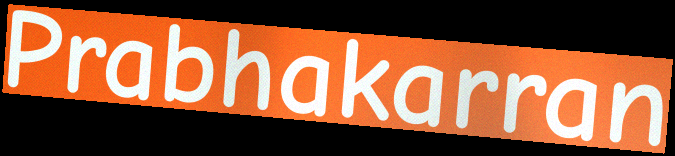
Prabhakarran